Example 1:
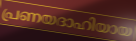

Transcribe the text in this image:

പ്രണയദാഹിയായ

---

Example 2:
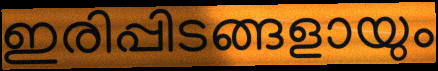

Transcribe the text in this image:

ഇരിപ്പിടങ്ങളായും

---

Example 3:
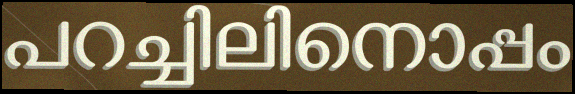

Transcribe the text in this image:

പറച്ചിലിനൊപ്പം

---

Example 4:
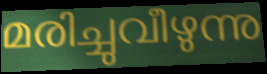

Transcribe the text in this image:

മരിച്ചുവീഴുന്നു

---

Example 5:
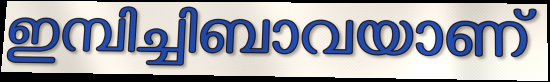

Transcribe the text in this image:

ഇമ്പിച്ചിബാവയാണ്